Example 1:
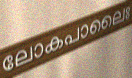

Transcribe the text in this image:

ലോകപാലൈഃ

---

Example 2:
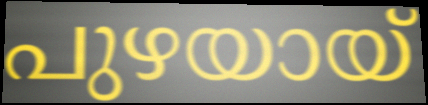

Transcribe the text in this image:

പുഴയായ്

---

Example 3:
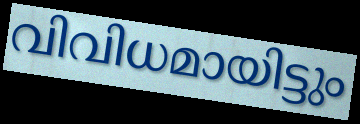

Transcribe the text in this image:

വിവിധമായിട്ടും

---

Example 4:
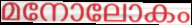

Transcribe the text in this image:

മനോലോകം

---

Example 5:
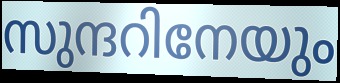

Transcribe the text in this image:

സുന്ദറിനേയും